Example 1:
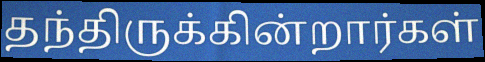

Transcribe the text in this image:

தந்திருக்கின்றார்கள்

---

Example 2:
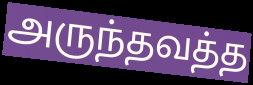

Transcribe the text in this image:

அருந்தவத்த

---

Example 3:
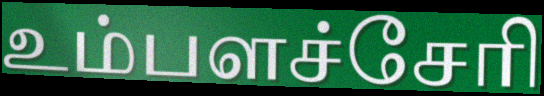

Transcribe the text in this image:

உம்பளச்சேரி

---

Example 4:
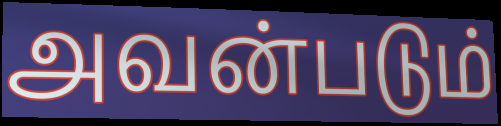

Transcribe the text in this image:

அவன்படும்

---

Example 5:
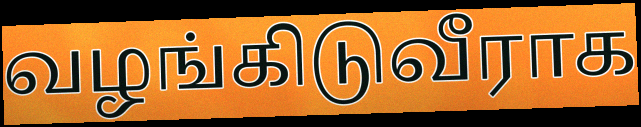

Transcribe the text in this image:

வழங்கிடுவீராக